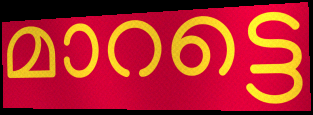
മാറട്ടെ